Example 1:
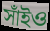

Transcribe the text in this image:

সাঁইও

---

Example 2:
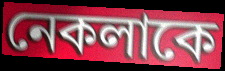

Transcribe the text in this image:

নেকলাকে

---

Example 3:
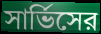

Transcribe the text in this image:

সার্ভিসের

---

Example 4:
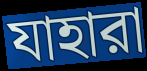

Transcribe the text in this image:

যাহারা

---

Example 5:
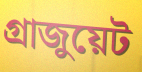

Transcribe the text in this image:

গ্রাজুয়েট